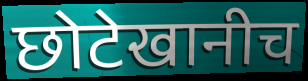
छोटेखानीच